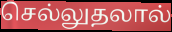
செல்லுதலால்